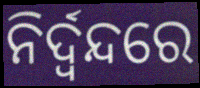
ନିର୍ଦ୍ୱନ୍ଦରେ